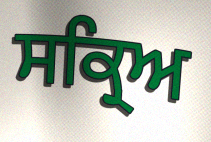
ਸਕ੍ਰਿਅ